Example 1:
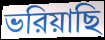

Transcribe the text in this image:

ভরিয়াছি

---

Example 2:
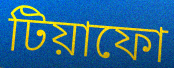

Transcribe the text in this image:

টিয়াফো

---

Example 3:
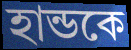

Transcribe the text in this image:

হান্ডকে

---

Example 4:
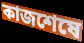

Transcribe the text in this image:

কাজশেষে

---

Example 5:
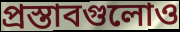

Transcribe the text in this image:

প্রস্তাবগুলোও